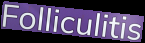
Folliculitis